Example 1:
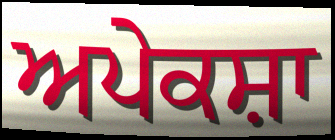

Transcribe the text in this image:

ਅਪੇਕਸ਼ਾ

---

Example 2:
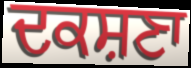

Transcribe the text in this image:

ਦਕਸ਼ਣਾ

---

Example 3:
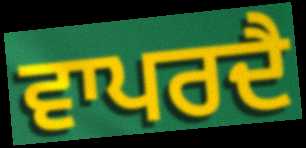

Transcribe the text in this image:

ਵਾਪਰਦੈ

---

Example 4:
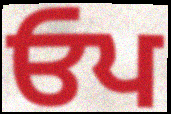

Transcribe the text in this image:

ਓਪ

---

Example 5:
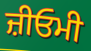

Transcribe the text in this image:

ਜ਼ੀਓਮੀ